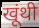
खूंथी